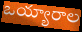
ఒయ్యారాల